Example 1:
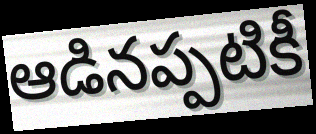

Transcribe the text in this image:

ఆడినప్పటికీ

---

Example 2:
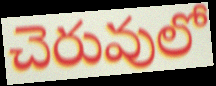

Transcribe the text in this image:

చెరువులో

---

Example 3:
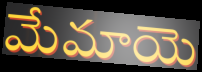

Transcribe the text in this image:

మేమాయె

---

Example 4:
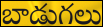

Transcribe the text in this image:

బాడుగలు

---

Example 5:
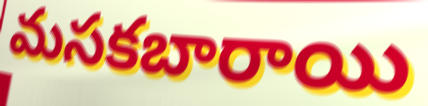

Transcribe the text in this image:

మసకబారాయి